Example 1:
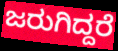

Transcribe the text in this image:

ಜರುಗಿದ್ದರೆ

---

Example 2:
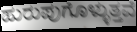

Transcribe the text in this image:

ಹುರುಪುಗೊಳ್ಳುತ್ತವೆ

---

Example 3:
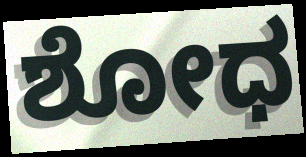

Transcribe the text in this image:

ಶೋಧ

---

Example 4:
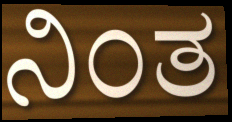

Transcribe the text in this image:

ನಿಂತ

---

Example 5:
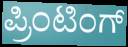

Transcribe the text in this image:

ಪ್ರಿಂಟಿಂಗ್